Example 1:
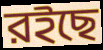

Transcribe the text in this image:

রইছে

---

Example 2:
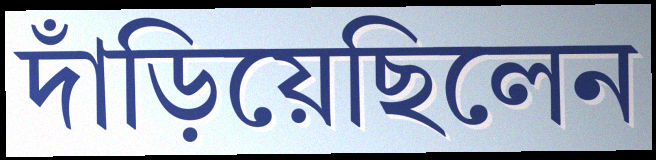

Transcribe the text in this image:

দাঁড়িয়েছিলেন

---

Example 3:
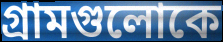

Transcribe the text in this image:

গ্রামগুলোকে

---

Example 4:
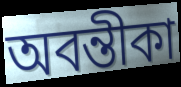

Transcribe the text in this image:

অবন্তীকা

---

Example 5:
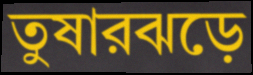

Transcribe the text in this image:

তুষারঝড়ে